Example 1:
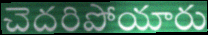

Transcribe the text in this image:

చెదరిపోయారు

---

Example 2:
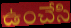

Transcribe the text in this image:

ఉంచేసి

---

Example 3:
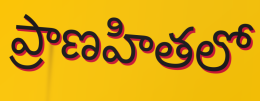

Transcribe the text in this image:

ప్రాణహితలో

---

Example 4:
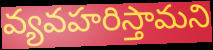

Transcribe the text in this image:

వ్యవహరిస్తామని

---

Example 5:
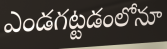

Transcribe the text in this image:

ఎండగట్టడంలోనూ